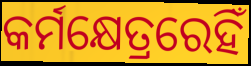
କର୍ମକ୍ଷେତ୍ରରେହିଁ